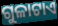
ଗୁଳାଟାଏ